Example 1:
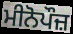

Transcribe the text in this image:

ਮੀਨੋਪੌਜ਼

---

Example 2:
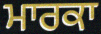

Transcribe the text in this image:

ਮਾਰਕਾ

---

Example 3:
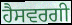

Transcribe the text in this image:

ਹੈਸਵਰਗੀ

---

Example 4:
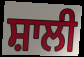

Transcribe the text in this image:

ਸ਼ਾਲੀ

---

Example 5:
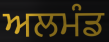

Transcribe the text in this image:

ਅਲਮੰਡ